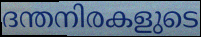
ദന്തനിരകളുടെ